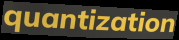
quantization